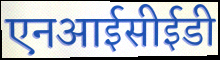
एनआईसीईडी